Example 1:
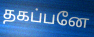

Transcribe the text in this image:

தகப்பனே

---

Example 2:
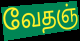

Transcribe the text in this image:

வேதஞ்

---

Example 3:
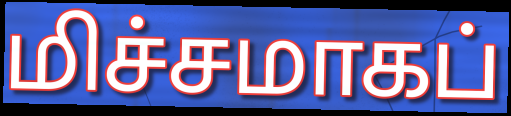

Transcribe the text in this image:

மிச்சமாகப்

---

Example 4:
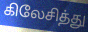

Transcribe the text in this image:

கிலேசித்து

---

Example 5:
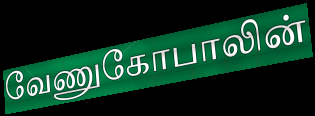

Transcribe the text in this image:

வேணுகோபாலின்